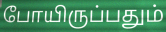
போயிருப்பதும்